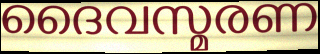
ദൈവസ്മരണ